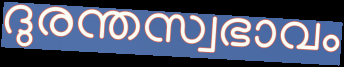
ദുരന്തസ്വഭാവം